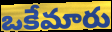
ఒకేమారు